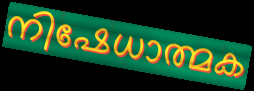
നിഷേധാത്മക